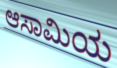
ಆಸಾಮಿಯ